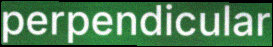
perpendicular